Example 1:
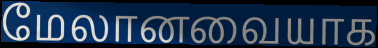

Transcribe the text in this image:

மேலானவையாக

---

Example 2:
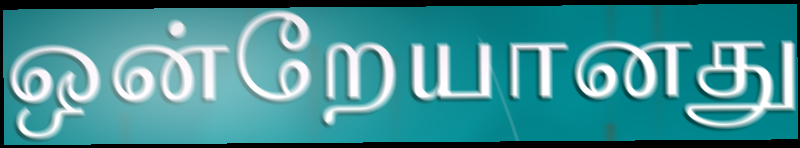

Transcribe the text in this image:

ஒன்றேயானது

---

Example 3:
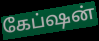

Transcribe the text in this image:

கேப்ஷன்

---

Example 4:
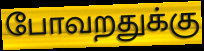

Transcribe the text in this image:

போவறதுக்கு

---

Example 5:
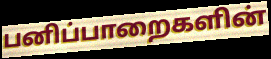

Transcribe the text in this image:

பனிப்பாறைகளின்